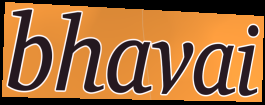
bhavai